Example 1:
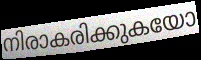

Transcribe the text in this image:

നിരാകരിക്കുകയോ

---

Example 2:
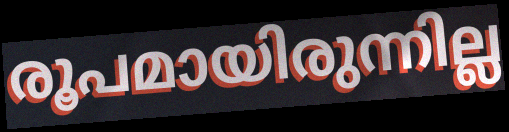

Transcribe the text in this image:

രൂപമായിരുന്നില്ല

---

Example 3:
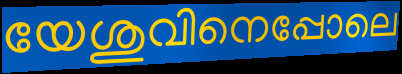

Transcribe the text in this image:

യേശുവിനെപ്പോലെ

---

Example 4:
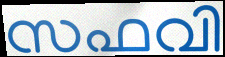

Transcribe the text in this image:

സഫവി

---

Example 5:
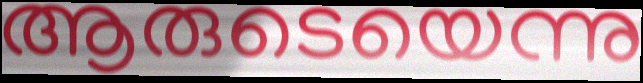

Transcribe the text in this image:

ആരുടെയെന്നു